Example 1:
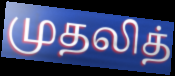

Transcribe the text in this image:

முதலித்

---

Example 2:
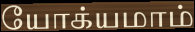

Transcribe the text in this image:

யோக்யமாம்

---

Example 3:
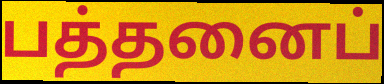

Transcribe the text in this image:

பத்தனைப்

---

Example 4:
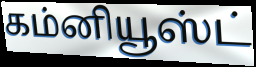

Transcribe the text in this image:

கம்னியூஸ்ட்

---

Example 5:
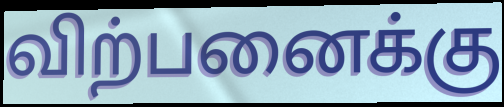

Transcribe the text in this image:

விற்பனைக்கு